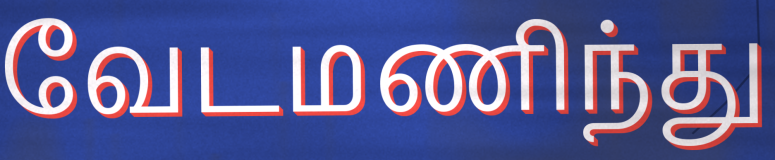
வேடமணிந்து